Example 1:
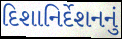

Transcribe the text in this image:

દિશાનિર્દેશનનું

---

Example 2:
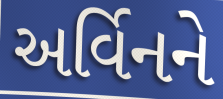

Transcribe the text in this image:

અર્વિનને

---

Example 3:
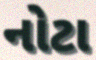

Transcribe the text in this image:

નોટા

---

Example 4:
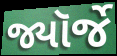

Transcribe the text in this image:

જ્યૉર્જે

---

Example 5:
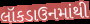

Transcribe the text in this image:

લૉકડાઉનમાંથી